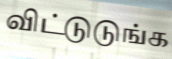
விட்டுடுங்க